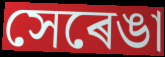
সেৰেঙা